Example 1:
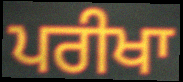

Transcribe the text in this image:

ਪਰੀਖਾ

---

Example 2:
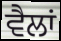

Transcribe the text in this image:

ਵੈਲਾਂ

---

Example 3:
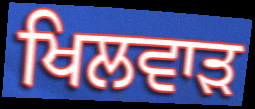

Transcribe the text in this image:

ਖਿਲਵਾੜ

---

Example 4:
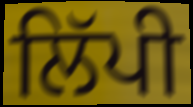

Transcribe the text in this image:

ਲਿੱਪੀ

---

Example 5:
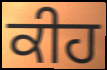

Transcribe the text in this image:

ਕੀਹ